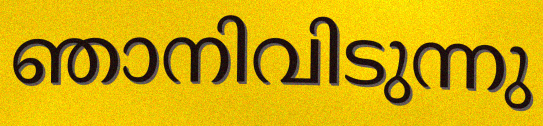
ഞാനിവിടുന്നു